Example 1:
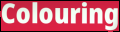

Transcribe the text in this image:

Colouring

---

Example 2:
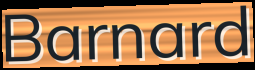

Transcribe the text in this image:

Barnard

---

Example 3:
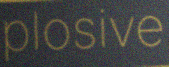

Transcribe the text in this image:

plosive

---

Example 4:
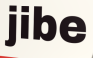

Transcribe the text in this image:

jibe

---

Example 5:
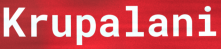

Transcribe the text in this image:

Krupalani